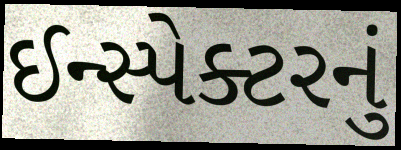
ઈન્સ્પેક્ટરનું